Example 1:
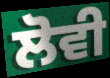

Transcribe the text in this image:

ਲੋਵੀ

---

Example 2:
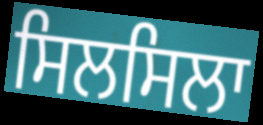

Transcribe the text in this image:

ਸਿਲਸਿਲਾ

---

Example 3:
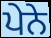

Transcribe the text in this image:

ਪੇਨੇ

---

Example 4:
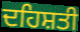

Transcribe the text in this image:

ਦਹਿਸ਼ਤੀ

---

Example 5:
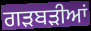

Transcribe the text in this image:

ਗੜਬੜੀਆਂ